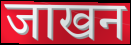
जाखन